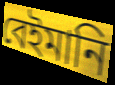
বেইমানি